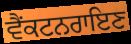
ਵੈਂਕਟਨਰਾਇਣ